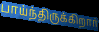
பாய்ந்திருக்கிறார்